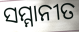
ସମ୍ମାନୀତ